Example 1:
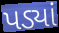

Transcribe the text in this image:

પડ્યાં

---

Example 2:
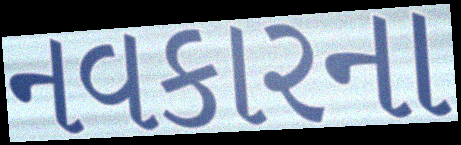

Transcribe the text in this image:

નવકારના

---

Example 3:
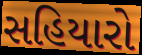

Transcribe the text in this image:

સહિયારો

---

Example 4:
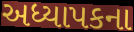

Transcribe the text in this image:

અધ્યાપકના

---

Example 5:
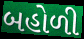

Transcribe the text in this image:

બહોળી